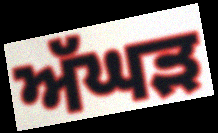
ਅੱਘੜ